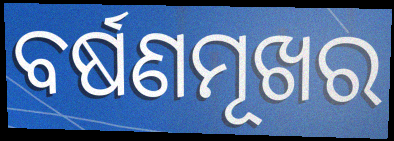
ବର୍ଷଣମୂଖର